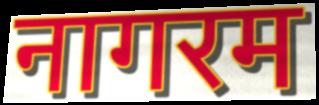
नागरम